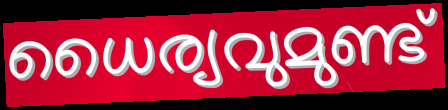
ധൈര്യവുമുണ്ട്